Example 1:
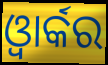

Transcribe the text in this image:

ଓ୍ବାର୍କର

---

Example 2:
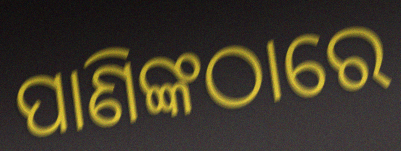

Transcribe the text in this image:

ପାଣିଙ୍କଠାରେ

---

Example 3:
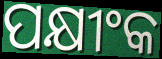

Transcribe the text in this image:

ପକ୍ଷୀଂକ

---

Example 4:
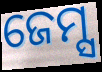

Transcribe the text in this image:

ଜେମ୍ସ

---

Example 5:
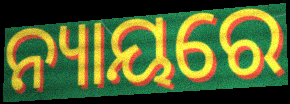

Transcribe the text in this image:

ନ୍ୟାୟରେ